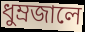
ধুম্রজালে